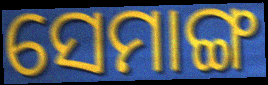
ସେମାଙ୍ଗ